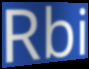
Rbi